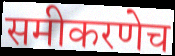
समीकरणेच